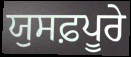
ਯੁਸਫ਼ਪੂਰੇ